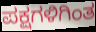
ಪಕ್ಷಗಳಿಗಿಂತ